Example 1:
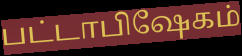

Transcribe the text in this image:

பட்டாபிஷேகம்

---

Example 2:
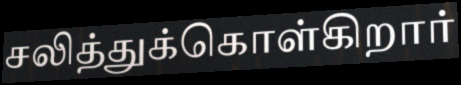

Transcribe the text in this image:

சலித்துக்கொள்கிறார்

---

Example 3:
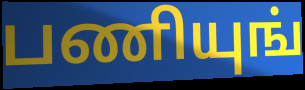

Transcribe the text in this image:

பணியுங்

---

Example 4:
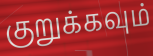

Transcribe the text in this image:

குறுக்கவும்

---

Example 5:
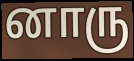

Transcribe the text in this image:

னாரு